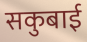
सकुबाई